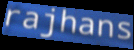
rajhans